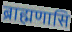
ब्राह्मणासि